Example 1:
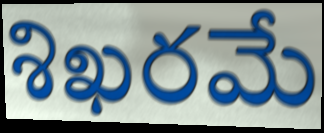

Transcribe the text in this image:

శిఖరమే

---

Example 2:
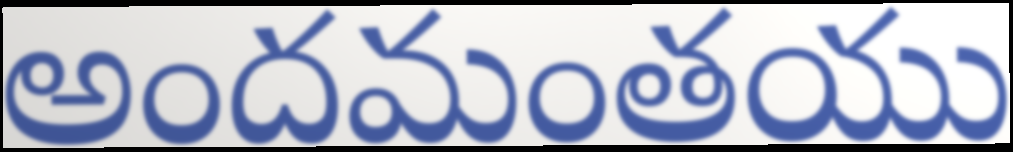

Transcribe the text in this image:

అందమంతయు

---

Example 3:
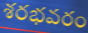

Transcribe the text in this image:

శరభవరం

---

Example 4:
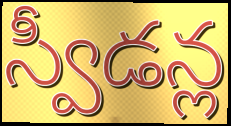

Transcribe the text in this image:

స్వీడన్ల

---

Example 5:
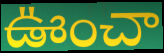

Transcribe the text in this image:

ఊంచా